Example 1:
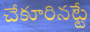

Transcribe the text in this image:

చేకూరినట్టే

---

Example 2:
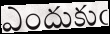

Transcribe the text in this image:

ఎందుకుఁ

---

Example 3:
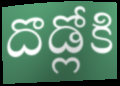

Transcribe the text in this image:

దొడ్లోకి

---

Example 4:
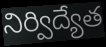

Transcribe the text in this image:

నిర్విద్యేత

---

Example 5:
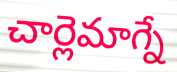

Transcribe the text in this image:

చార్లెమాగ్నే